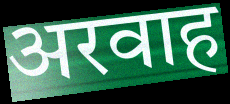
अरवाह